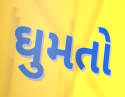
ઘુમતો